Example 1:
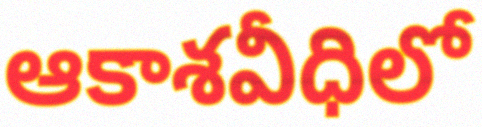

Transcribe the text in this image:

ఆకాశవీధిలో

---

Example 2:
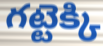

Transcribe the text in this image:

గట్టెక్కి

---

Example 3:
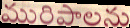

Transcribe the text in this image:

మురిపాలను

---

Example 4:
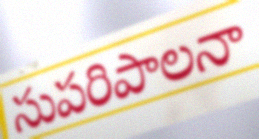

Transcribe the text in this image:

సుపరిపాలనా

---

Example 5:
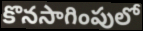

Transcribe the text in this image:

కొనసాగింపులో